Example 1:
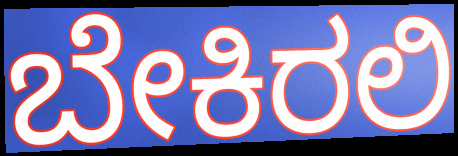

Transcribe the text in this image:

ಬೇಕಿರಲಿ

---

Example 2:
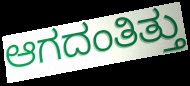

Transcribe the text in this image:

ಆಗದಂತಿತ್ತು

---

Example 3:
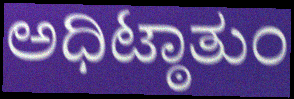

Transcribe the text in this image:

ಅಧಿಟ್ಠಾತುಂ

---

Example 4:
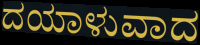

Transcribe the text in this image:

ದಯಾಳುವಾದ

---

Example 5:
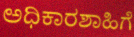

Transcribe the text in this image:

ಅಧಿಕಾರಶಾಹಿಗೆ